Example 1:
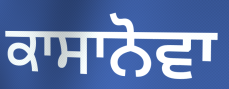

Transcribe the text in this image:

ਕਾਸਾਨੋਵਾ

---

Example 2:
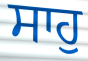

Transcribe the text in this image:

ਸਾਹੁ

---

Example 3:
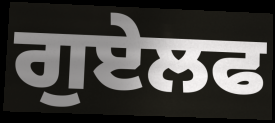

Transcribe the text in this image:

ਗੁਏਲਫ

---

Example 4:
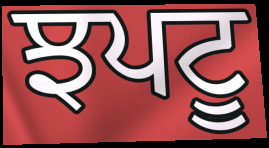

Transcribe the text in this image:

ਝਪਟੂ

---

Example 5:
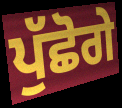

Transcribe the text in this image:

ਪੁੱਛੋਗੇ